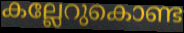
കല്ലേറുകൊണ്ട